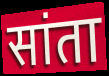
सांता